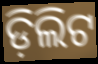
ଡ଼ିଲିଟ